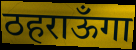
ठहराऊँगा